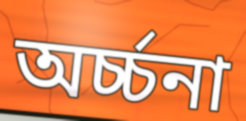
অর্চ্চনা